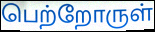
பெற்றோருள்